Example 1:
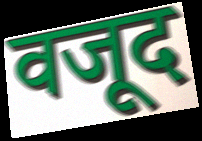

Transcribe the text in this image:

वजूद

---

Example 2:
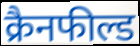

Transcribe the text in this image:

क्रैनफील्ड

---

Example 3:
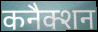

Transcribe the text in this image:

कनैक्शन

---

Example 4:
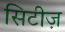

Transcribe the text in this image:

सिटीज़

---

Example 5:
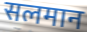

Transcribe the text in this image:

सलमान